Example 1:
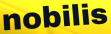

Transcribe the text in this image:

nobilis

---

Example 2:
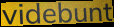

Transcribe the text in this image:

videbunt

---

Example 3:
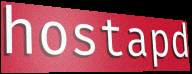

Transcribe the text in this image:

hostapd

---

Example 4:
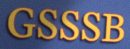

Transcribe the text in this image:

GSSSB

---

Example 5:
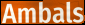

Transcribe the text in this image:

Ambals